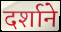
दर्शाने